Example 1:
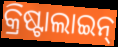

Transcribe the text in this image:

କ୍ରିଷ୍ଟାଲାଇନ୍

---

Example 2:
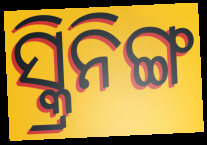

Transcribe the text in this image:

ସ୍କ୍ରିନିଙ୍ଗ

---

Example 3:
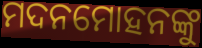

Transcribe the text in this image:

ମଦନମୋହନଙ୍କୁ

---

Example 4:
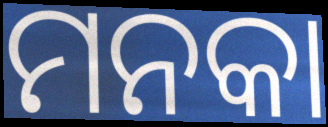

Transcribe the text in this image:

ମନକା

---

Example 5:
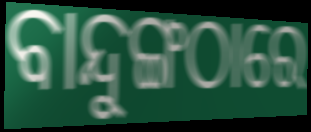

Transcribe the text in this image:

ବାନ୍ଦୁଙ୍ଗଠାରେ